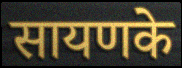
सायणके